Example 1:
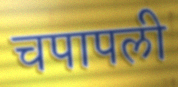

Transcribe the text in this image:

चपापली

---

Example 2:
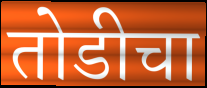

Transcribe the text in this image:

तोडीचा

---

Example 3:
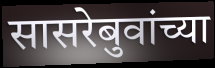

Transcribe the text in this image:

सासरेबुवांच्या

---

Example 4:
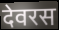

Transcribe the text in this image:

देवरस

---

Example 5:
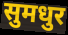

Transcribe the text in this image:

सुमधुर